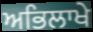
ਅਭਿਲਾਖੇ